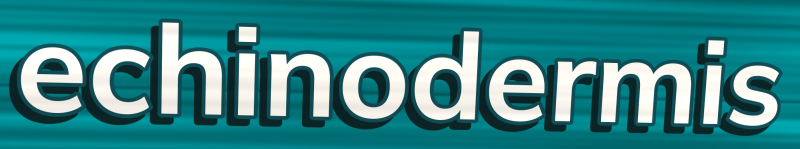
echinodermis